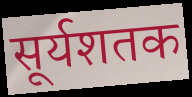
सूर्यशतक